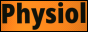
Physiol